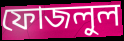
ফোজলুল